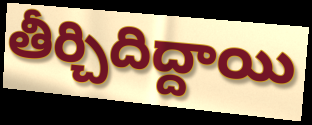
తీర్చిదిద్దాయి